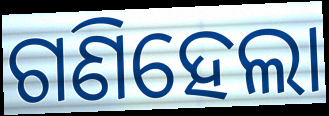
ଗଣିହେଲା